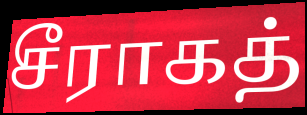
சீராகத்